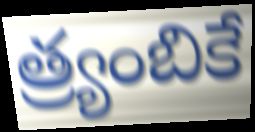
త్ర్యంబికే